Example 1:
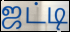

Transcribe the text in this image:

ஜட்டி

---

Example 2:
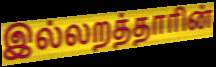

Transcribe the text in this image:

இல்லறத்தாரின்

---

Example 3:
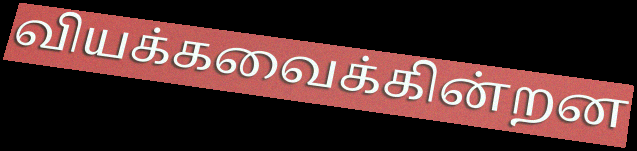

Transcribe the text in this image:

வியக்கவைக்கின்றன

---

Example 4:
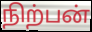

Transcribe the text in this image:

நிற்பன்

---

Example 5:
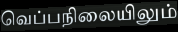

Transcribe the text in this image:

வெப்பநிலையிலும்